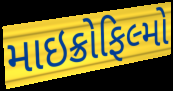
માઇક્રોફિલ્મો